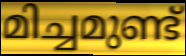
മിച്ചമുണ്ട്